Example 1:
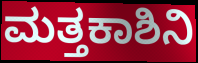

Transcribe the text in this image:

ಮತ್ತಕಾಶಿನಿ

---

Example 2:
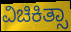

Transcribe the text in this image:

ವಿಚಿಕಿತ್ಸಾ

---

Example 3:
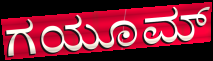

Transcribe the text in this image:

ಗಯೂಮ್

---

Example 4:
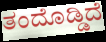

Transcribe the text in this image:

ತಂದೊಡ್ಡಿದೆ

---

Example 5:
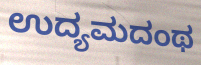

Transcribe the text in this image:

ಉದ್ಯಮದಂಥ